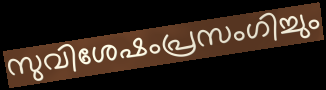
സുവിശേഷംപ്രസംഗിച്ചും